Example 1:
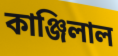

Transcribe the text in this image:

কাঞ্জিলাল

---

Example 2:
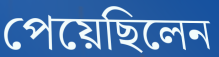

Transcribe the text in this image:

পেয়েছিলেন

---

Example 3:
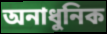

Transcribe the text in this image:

অনাধুনিক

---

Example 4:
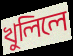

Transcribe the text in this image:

খুলিলে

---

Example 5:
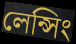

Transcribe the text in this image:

লেন্সিং